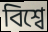
বিশ্বে